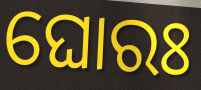
ଘୋରଃ